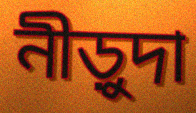
নীড়ুদা